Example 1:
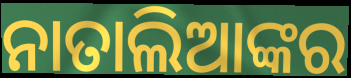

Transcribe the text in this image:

ନାତାଲିଆଙ୍କର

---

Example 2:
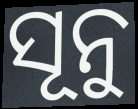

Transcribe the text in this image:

ସୂନୁ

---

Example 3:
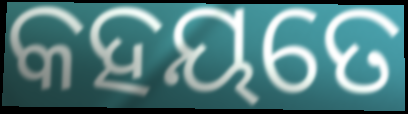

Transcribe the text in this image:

କହୟତେ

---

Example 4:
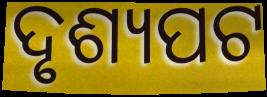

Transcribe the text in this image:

ଦୃଶ୍ୟପଟ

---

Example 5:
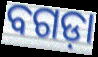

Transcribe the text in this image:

ବଗଡ଼ା